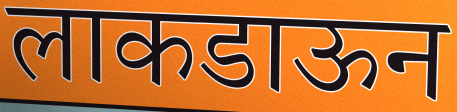
लाकडाऊन